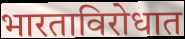
भारताविरोधात